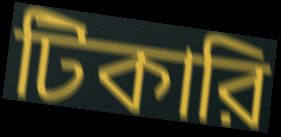
টিকারি